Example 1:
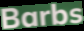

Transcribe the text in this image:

Barbs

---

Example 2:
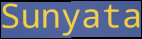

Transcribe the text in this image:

Sunyata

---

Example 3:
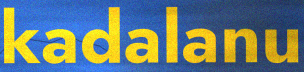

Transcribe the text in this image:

kadalanu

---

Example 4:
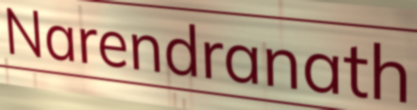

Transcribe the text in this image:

Narendranath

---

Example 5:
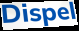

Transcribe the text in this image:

Dispel